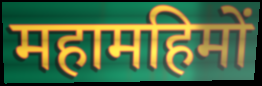
महामहिमों